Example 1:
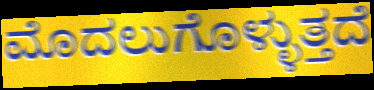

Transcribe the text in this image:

ಮೊದಲುಗೊಳ್ಳುತ್ತದೆ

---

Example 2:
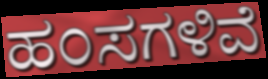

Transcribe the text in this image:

ಹಂಸಗಳಿವೆ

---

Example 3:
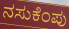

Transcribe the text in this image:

ನಸುಕೆಂಪು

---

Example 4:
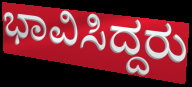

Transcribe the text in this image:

ಭಾವಿಸಿದ್ದರು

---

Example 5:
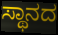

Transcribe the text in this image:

ಸ್ಥಾನದ